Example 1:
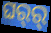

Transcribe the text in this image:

ଘର୍‍ର୍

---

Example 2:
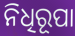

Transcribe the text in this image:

ନିଧିରୂପା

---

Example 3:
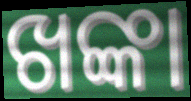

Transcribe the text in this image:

ଖଙ୍କା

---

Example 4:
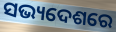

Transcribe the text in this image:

ସଭ୍ୟଦେଶରେ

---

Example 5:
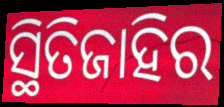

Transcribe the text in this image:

ସ୍ଥିତିଜାହିର